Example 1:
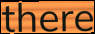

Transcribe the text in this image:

there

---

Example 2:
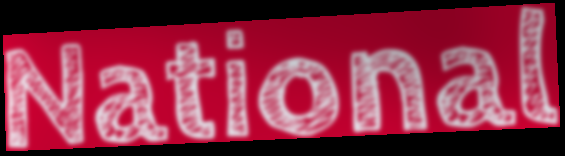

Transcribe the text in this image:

National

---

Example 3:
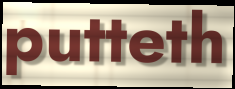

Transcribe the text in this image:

putteth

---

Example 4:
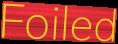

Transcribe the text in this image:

Foiled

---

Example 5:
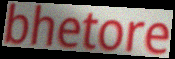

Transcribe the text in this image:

bhetore